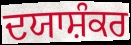
ਦਯਾਸ਼ੰਕਰ